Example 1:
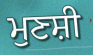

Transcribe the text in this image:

ਮੁਣਸ਼ੀ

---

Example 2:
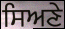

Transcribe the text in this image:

ਸਿਅਣੇ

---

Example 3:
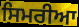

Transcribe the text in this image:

ਸਿਮਰੀਆ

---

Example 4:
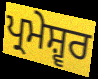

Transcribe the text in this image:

ਪ੍ਰਮੇਸ਼੍ਵਰ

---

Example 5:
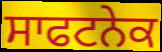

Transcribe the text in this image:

ਸਾਫਟਨੇਕ